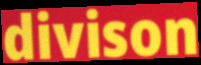
divison